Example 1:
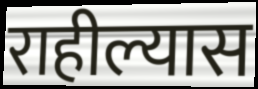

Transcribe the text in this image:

राहील्यास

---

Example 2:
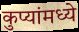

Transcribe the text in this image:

कुप्यांमध्ये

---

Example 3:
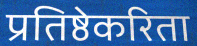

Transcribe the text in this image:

प्रतिष्ठेकरिता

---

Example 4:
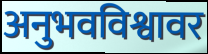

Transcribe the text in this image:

अनुभवविश्वावर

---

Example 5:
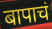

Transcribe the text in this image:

बापाचं